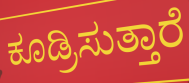
ಕೂಡ್ರಿಸುತ್ತಾರೆ